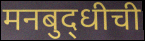
मनबुद्धीची